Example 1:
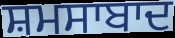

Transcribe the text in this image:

ਸ਼ਮਸਾਬਾਦ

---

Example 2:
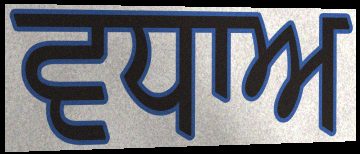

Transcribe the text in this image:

ਵਧਾਅ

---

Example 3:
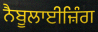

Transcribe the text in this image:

ਨੈਬੂਲਾਈਜ਼ਿੰਗ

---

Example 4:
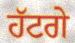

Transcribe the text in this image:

ਹੱਟਗੇ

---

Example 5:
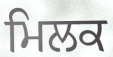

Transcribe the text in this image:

ਮਿਲਕ